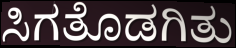
ಸಿಗತೊಡಗಿತು